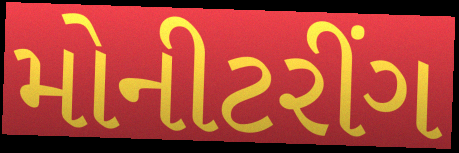
મોનીટરીંગ